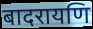
बादरायणि